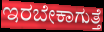
ಇರಬೇಕಾಗುತ್ತೆ